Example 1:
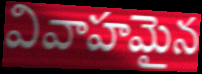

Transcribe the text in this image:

వివాహమైన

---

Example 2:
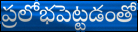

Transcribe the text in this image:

ప్రలోభపెట్టడంతో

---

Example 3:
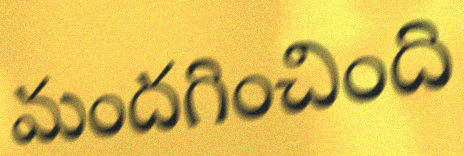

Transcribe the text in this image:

మందగించింది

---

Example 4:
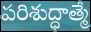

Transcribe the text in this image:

పరిశుద్ధాత్మే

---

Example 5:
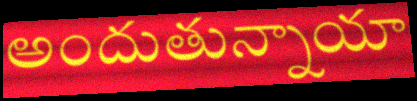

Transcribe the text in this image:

అందుతున్నాయా